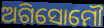
ଅଗିସୋମୌ